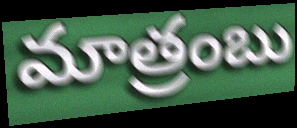
మాత్రంబు